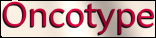
Oncotype